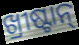
ଖ୍ରୀଷ୍ଟାନ୍